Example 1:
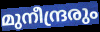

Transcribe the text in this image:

മുനീന്ദ്രരും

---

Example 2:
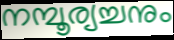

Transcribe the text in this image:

നമ്പൂര്യച്ചനും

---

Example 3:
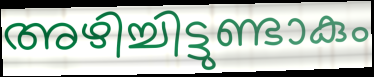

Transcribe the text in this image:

അഴിച്ചിട്ടുണ്ടാകും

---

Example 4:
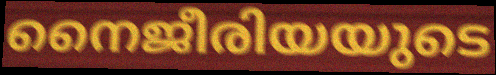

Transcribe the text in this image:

നൈജീരിയയുടെ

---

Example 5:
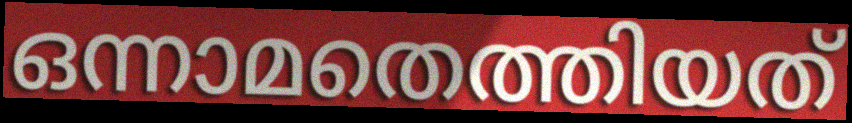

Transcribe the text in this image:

ഒന്നാമതെത്തിയത്